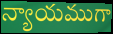
న్యాయముగా